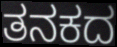
ತನಕದ